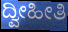
ದ್ವೀಹೀತಿ